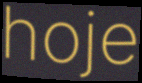
hoje